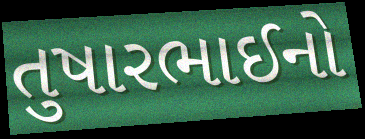
તુષારભાઈનો